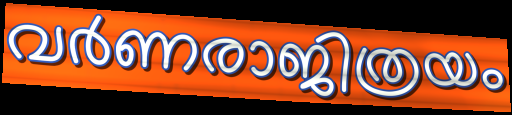
വർണരാജിത്രയം